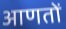
आणतों